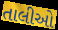
તાલીઓ